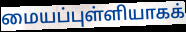
மையப்புள்ளியாகக்